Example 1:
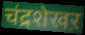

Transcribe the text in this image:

चंद्रशेखऱ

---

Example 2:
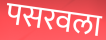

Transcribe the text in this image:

पसरवला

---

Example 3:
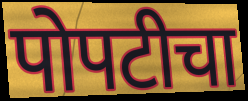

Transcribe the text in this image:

पोपटीचा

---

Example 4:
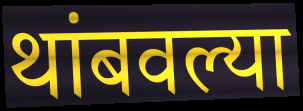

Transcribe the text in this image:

थांबवल्या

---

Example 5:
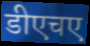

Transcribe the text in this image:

डीएचए